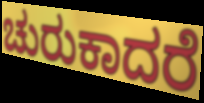
ಚುರುಕಾದರೆ